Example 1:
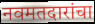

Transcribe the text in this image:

नवमतदारांचा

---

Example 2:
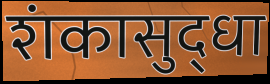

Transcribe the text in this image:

शंकासुद्धा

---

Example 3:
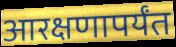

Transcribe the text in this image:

आरक्षणापर्यंत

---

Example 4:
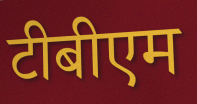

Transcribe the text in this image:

टीबीएम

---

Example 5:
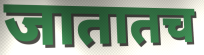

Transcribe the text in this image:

जातातच